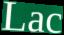
Lac